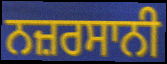
ਨਜ਼ਰਸਾਨੀ